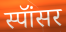
स्पॉंसर